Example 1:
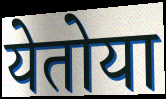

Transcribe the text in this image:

येतोया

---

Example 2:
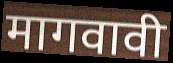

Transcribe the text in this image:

मागवावी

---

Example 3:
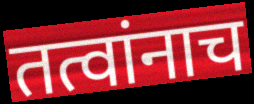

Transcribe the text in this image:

तत्वांनाच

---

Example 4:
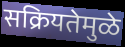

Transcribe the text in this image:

सक्रियतेमुळे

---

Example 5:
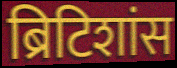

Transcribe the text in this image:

ब्रिटिशांस